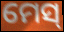
ମେସ୍